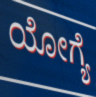
ಯೋಗ್ಯೆ